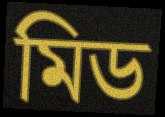
মিড